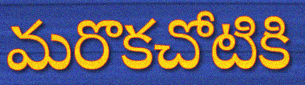
మరొకచోటికి